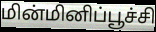
மின்மினிப்பூச்சி